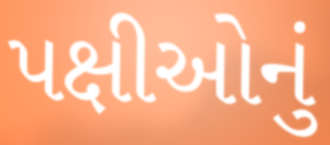
પક્ષીઓનું